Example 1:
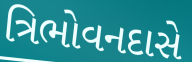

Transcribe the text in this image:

ત્રિભોવનદાસે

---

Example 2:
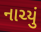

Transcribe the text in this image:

નાચ્યું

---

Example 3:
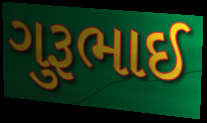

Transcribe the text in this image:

ગુરૂભાઈ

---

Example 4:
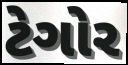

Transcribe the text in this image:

ટેગોર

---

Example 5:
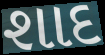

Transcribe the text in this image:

શાદ